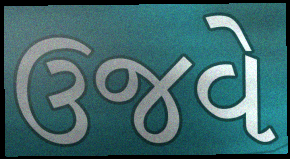
ઉજવે